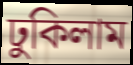
ঢুকিলাম